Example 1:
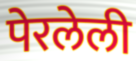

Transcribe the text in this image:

पेरलेली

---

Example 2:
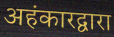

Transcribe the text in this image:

अहंकारद्वारा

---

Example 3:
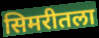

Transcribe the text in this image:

सिमरीतला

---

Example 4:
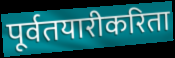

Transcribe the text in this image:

पूर्वतयारीकरिता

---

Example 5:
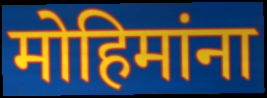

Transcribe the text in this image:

मोहिमांना